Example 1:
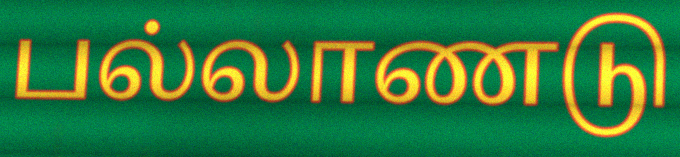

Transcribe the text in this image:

பல்லாணடு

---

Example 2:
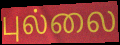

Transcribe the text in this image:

புல்லை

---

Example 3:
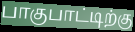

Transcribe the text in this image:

பாகுபாட்டிற்கு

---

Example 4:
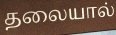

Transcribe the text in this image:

தலையால்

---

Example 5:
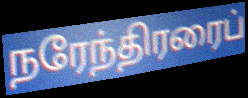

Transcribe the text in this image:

நரேந்திரரைப்